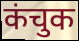
कंचुक